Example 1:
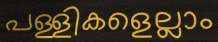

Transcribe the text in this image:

പള്ളികളെല്ലാം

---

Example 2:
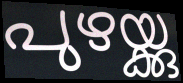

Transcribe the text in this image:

പുഴയ്ക്കു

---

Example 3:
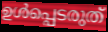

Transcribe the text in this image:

ഉൾപ്പെടരുത്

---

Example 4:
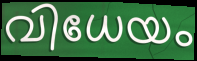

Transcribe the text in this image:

വിധേയം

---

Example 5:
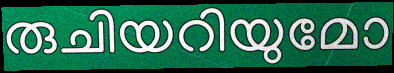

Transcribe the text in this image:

രുചിയറിയുമോ